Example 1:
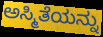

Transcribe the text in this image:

ಅಸ್ಮಿತೆಯನ್ನು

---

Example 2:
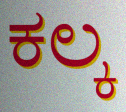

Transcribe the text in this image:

ಕಲ್ಕ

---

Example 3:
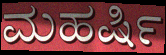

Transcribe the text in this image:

ಮಹರ್ಷಿ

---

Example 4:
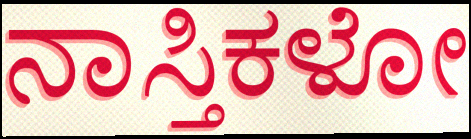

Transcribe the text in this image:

ನಾಸ್ತಿಕಳೋ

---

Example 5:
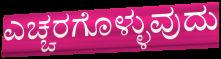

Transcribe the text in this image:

ಎಚ್ಚರಗೊಳ್ಳುವುದು